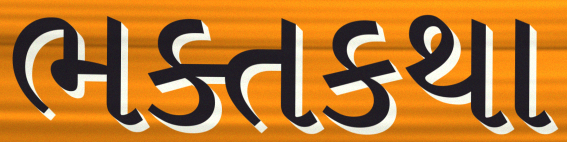
ભક્તકથા